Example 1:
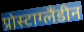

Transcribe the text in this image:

प्रोस्टाग्लैंडीन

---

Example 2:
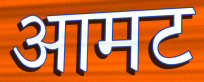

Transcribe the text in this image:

आमट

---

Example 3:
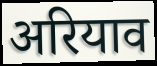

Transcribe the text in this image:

अरियाव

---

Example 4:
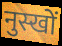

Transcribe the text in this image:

नुस्खों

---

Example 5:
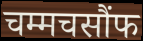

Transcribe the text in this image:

चम्मचसौंफ